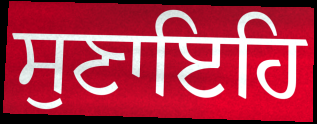
ਸੁਣਾਇਹਿ